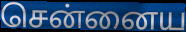
சென்னைய